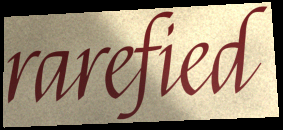
rarefied